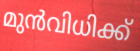
മുൻവിധിക്ക്